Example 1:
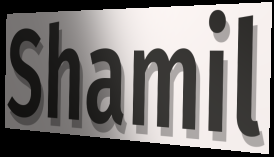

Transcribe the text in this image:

Shamil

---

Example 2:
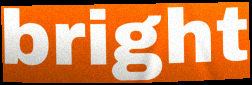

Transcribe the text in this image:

bright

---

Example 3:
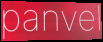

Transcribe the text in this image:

panvel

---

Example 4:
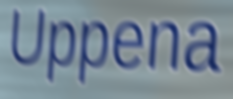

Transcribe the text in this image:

Uppena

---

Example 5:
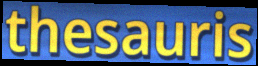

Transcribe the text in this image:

thesauris